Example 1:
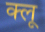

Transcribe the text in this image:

क्लू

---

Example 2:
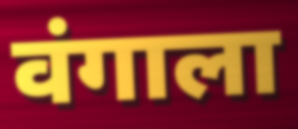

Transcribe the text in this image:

वंगाला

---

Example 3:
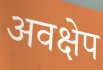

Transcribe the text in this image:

अवक्षेप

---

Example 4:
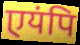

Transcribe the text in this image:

एयंपि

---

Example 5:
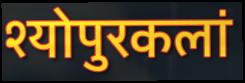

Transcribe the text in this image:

श्योपुरकलां